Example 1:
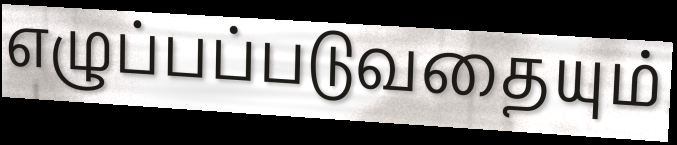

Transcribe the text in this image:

எழுப்பப்படுவதையும்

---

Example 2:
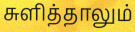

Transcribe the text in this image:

சுளித்தாலும்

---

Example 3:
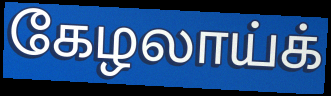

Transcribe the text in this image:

கேழலாய்க்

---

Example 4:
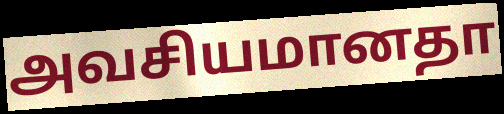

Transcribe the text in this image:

அவசியமானதா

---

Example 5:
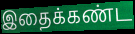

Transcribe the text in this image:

இதைக்கண்ட